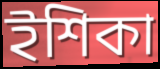
ইশিকা